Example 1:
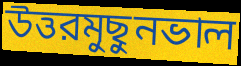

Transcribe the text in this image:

উত্তরমুছুনভাল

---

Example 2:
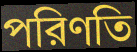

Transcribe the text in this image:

পরিণতি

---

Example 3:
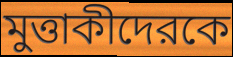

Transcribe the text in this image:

মুত্তাকীদেরকে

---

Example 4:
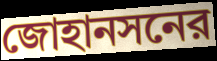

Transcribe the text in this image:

জোহানসনের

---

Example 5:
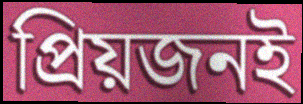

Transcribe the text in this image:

প্রিয়জনই